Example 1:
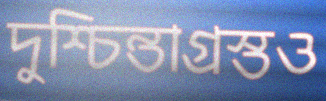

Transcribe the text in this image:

দুশ্চিন্তাগ্রস্তও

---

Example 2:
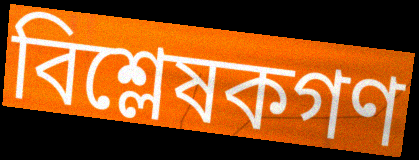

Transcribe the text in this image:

বিশ্লেষকগণ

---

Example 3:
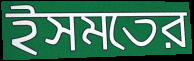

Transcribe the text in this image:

ইসমতের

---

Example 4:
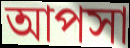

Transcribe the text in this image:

আপসা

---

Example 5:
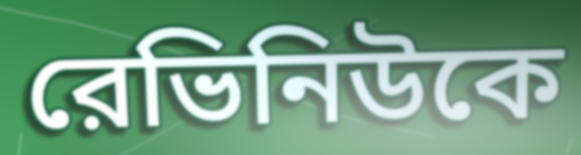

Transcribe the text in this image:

রেভিনিউকে